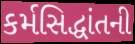
કર્મસિદ્ધાંતની